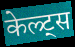
केल्ट्स